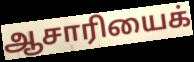
ஆசாரியைக்